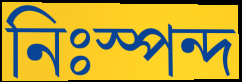
নিঃস্পন্দ